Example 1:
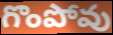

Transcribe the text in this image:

గొంపోవు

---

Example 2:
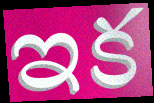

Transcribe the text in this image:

ఇక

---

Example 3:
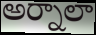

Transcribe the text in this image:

అర్నాలా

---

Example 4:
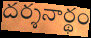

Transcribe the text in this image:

దర్శనార్థం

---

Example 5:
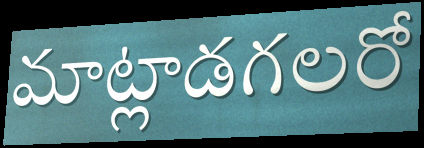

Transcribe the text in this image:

మాట్లాడగలరో